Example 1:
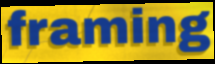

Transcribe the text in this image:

framing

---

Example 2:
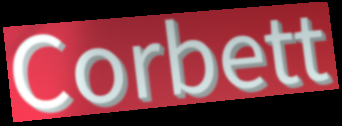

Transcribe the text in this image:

Corbett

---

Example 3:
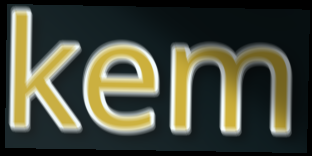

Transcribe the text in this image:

kem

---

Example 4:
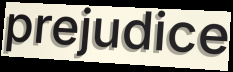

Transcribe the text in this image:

prejudice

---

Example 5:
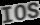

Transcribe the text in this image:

IOS